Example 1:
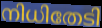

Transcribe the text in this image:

നിധിതേടി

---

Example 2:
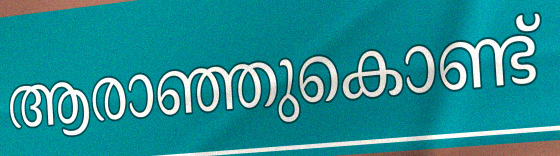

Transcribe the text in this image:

ആരാഞ്ഞുകൊണ്ട്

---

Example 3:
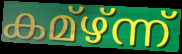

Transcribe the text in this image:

കമ്ഴ്ന്ന്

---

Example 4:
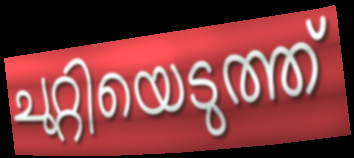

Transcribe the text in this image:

ചുറ്റിയെടുത്ത്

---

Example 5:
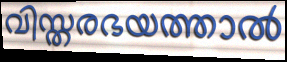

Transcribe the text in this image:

വിസ്തരഭയത്താൽ